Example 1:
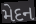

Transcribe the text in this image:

મેદન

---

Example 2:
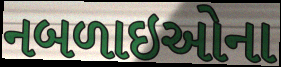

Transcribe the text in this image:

નબળાઇઓના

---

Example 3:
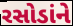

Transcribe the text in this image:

રસોડાંને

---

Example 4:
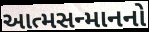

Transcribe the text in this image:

આત્મસન્માનનો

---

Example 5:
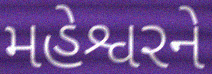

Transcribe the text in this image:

મહેશ્વરને